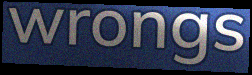
wrongs